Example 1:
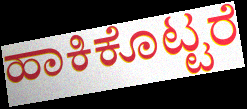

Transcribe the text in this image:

ಹಾಕಿಕೊಟ್ಟರೆ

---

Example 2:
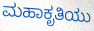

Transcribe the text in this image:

ಮಹಾಕೃತಿಯು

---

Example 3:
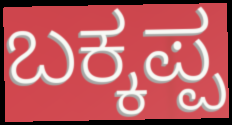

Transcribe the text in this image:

ಬಕ್ಕಪ್ಪ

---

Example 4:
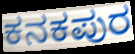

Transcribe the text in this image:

ಕನಕಪುರ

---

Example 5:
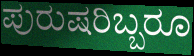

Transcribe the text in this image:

ಪುರುಷರಿಬ್ಬರೂ